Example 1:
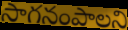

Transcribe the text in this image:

సాగనంపాలని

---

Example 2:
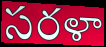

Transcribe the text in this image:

సరళా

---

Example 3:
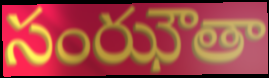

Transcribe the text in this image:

సంఝౌతా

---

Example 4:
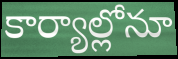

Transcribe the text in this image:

కార్యాల్లోనూ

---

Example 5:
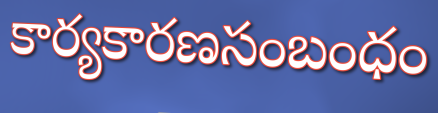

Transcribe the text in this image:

కార్యకారణసంబంధం